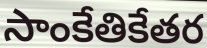
సాంకేతికేతర